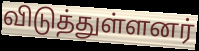
விடுத்துள்ளனர்